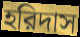
হরিদাস